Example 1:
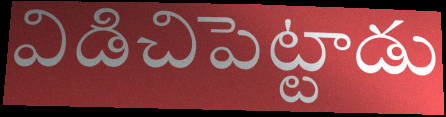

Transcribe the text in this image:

విడిచిపెట్టాడు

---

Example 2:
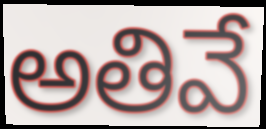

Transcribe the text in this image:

అతివే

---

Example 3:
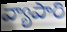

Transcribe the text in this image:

వ్యాపారి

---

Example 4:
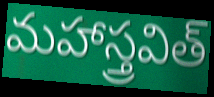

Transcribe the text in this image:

మహాస్త్రవిత్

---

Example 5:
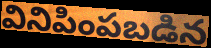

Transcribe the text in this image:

వినిపింపబడిన